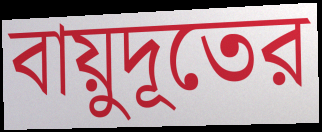
বায়ুদূতের